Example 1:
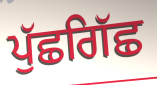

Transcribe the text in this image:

ਪੁੱਛਗਿੱਛ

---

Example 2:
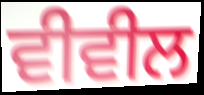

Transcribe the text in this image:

ਵੀਵੀਲ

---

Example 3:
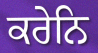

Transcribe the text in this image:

ਕਰੇਨਿ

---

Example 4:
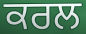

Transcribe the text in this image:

ਕਰਲ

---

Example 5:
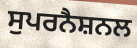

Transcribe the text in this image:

ਸੁਪਰਨੈਸ਼ਨਲ